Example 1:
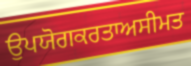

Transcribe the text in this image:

ਉਪਯੋਗਕਰਤਾਅਸੀਮਤ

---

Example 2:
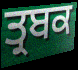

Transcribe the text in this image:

ਤ੍ਰਬਕ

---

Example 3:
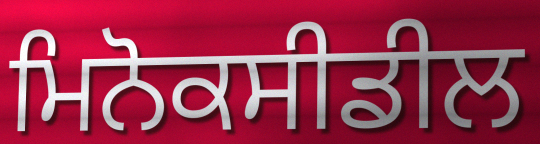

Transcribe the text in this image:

ਮਿਨੋਕਸੀਡੀਲ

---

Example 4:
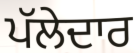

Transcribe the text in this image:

ਪੱਲੇਦਾਰ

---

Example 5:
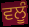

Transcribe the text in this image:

ਵਲੂੰ